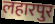
लहारपुर